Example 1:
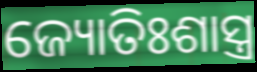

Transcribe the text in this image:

ଜ୍ୟୋତିଃଶାସ୍ତ୍ର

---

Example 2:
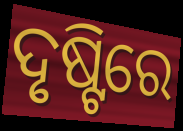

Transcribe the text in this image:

ଦୃଷ୍ଟିରେ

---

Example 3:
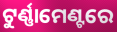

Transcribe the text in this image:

ଟୁର୍ଣ୍ଣାମେଣ୍ଟରେ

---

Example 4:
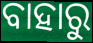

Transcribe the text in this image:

ବାହାରୁ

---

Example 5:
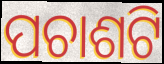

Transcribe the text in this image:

ପଚାଶଟି